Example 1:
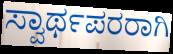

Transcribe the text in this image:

ಸ್ವಾರ್ಥಪರರಾಗಿ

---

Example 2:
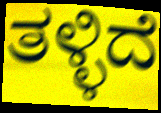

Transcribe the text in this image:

ತಳ್ಳಿದೆ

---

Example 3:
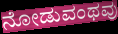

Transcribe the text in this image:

ನೋಡುವಂಥವು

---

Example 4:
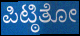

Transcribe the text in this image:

ಪಿಟ್ಠಿತೋ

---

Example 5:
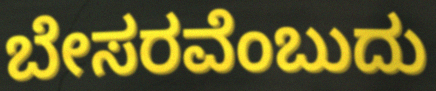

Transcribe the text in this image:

ಬೇಸರವೆಂಬುದು